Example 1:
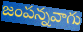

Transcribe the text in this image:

జంపన్నవాగు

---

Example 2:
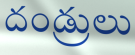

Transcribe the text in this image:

దండ్రులు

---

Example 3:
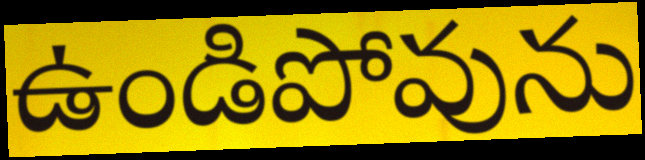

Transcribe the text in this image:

ఉండిపోవును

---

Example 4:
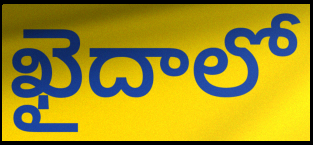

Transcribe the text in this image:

ఖైదాలో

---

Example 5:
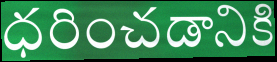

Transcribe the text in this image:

ధరించడానికి